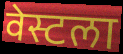
वेस्टला